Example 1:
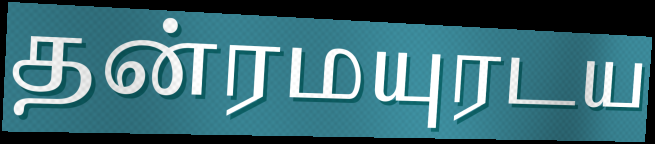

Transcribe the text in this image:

தன்ரமயுரடய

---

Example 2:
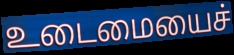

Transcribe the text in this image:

உடைமையைச்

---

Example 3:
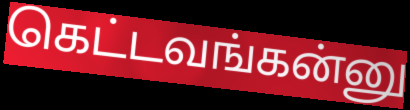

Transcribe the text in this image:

கெட்டவங்கன்னு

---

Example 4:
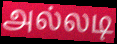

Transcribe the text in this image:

அல்லடி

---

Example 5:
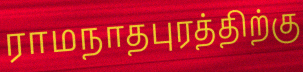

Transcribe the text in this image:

ராமநாதபுரத்திற்கு